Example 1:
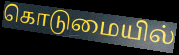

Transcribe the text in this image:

கொடுமையில்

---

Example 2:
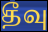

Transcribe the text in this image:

தீவு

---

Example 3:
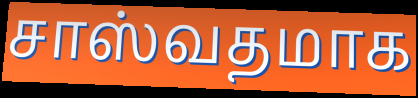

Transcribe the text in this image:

சாஸ்வதமாக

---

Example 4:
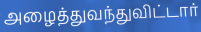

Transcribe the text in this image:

அழைத்துவந்துவிட்டார்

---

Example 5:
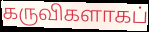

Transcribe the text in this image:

கருவிகளாகப்